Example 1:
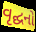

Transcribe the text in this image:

વૃદ્ઘનો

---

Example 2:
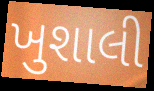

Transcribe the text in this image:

ખુશાલી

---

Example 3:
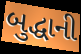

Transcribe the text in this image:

બુદ્ધાની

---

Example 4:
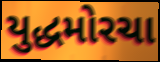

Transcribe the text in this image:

યુદ્ધમોરચા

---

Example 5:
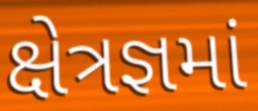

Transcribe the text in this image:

ક્ષેત્રજ્ઞમાં